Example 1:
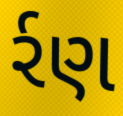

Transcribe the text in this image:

ર્રણ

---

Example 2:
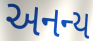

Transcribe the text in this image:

અનન્ય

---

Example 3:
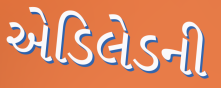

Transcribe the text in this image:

એડિલેડની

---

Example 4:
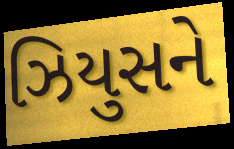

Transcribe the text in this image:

ઝિયુસને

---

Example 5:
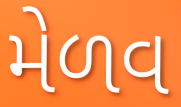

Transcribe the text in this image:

મેળવ